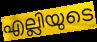
എല്ലിയുടെ